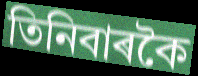
তিনিবাৰকৈ